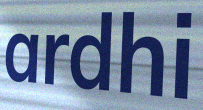
ardhi